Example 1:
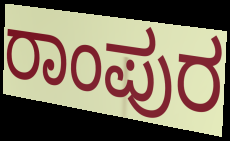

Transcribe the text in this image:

ರಾಂಪುರ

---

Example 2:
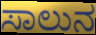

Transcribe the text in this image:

ಸಾಲುನ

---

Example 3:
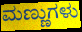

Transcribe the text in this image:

ಮಣ್ಣುಗಳು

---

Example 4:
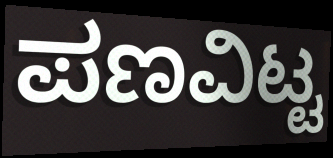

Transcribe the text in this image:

ಪಣವಿಟ್ಟ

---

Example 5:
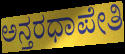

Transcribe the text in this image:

ಅನ್ತರಧಾಪೇತಿ